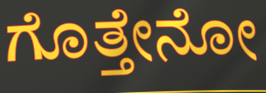
ಗೊತ್ತೇನೋ